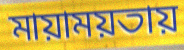
মায়াময়তায়